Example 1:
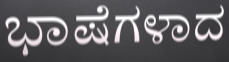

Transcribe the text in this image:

ಭಾಷೆಗಳಾದ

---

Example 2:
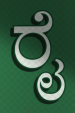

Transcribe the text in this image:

ರೈ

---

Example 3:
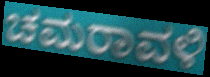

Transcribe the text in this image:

ಚಮರಾವಳಿ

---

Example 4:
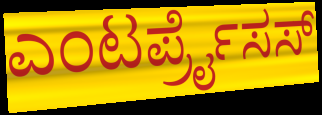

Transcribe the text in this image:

ಎಂಟರ್ಪ್ರೈಸಸ್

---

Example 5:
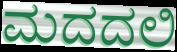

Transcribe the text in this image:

ಮದದಲಿ